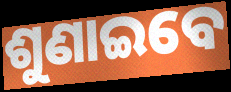
ଶୁଣାଇବେ